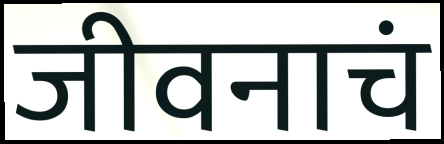
जीवनाचं